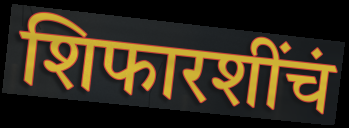
शिफारशींचं